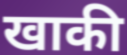
खाकी